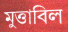
মুত্তাবিল